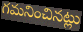
గమనించినట్లు